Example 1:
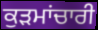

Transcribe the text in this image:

ਕੁੜਮਾਂਚਾਰੀ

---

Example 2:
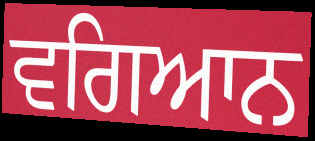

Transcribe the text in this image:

ਵਗਿਆਨ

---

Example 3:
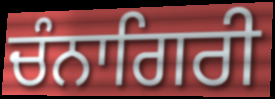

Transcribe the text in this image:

ਚੰਨਾਗਿਰੀ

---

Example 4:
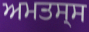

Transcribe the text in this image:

ਅਮਤਸ੍ਸ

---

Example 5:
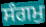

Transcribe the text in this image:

ਸੰਗਮੁ